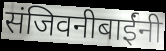
संजिवनीबाईंनी